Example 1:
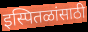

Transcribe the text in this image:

इस्पितळांसाठी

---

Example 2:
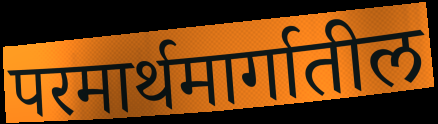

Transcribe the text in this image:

परमार्थमार्गातील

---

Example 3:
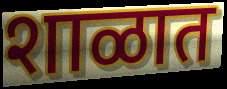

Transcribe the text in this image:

शाळात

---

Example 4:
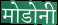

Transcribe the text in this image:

मोडोनी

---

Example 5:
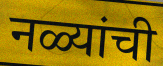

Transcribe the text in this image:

नळ्यांची